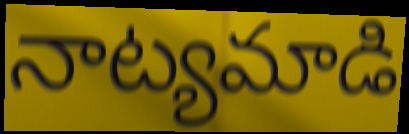
నాట్యమాడి